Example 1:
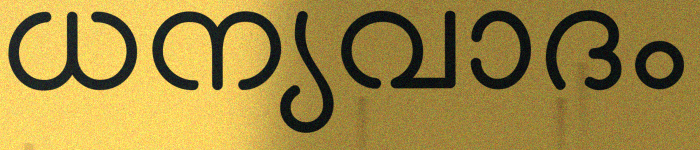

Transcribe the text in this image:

ധന്യവാദം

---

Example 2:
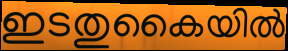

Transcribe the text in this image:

ഇടതുകൈയിൽ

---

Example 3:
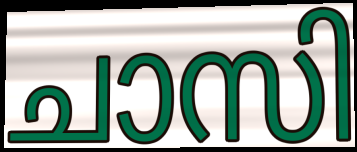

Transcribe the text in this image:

ചാസി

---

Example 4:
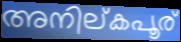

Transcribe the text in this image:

അനില്കപൂര്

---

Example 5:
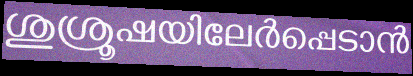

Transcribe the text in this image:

ശുശ്രൂഷയിലേർപ്പെടാൻ